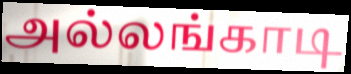
அல்லங்காடி